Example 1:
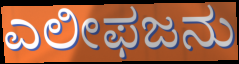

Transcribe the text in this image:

ಎಲೀಫಜನು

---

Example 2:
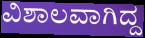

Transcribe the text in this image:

ವಿಶಾಲವಾಗಿದ್ದ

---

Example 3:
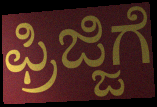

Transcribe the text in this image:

ಫ್ರಿಜ್ಜಿಗೆ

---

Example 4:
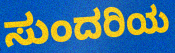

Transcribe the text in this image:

ಸುಂದರಿಯ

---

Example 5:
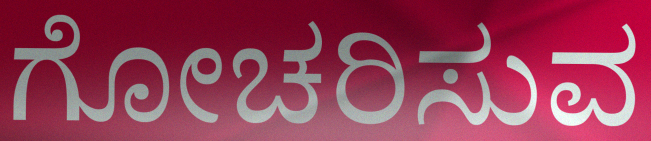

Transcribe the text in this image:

ಗೋಚರಿಸುವ